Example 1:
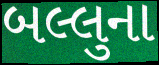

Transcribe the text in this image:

બલ્લુના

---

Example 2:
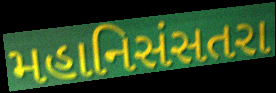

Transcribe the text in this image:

મહાનિસંસતરા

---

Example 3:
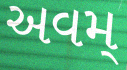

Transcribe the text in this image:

અવમ્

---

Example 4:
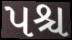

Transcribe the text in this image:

પશ્ચ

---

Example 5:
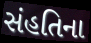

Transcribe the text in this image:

સંહતિના